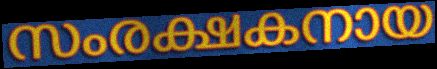
സംരക്ഷകനായ